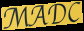
MADC